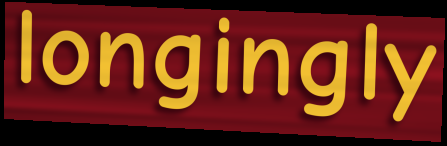
longingly